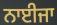
ਨਾਈਜਾ